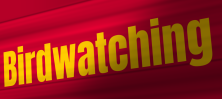
Birdwatching